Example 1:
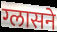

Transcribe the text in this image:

ग्लासने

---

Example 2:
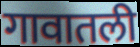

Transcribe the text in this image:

गावातली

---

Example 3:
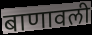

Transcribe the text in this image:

बाणावली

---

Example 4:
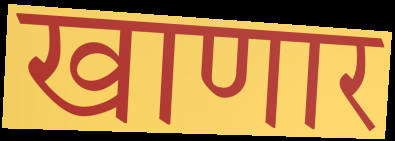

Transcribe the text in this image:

खाणार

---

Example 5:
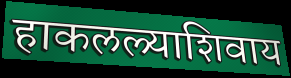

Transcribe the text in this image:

हाकलल्याशिवाय